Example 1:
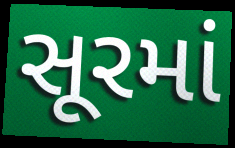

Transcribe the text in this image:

સૂરમાં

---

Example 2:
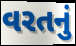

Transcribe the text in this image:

વરતનું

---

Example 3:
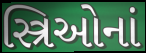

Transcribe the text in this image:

સ્ત્રિઓનાં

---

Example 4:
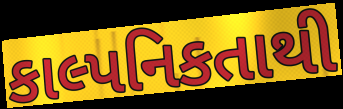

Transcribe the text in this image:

કાલ્પનિકતાથી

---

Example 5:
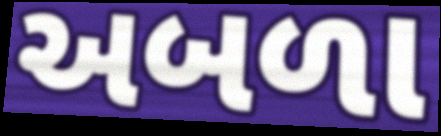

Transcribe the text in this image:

અબળા